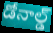
డోనాల్డ్